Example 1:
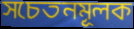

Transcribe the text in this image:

সচেতনমূলক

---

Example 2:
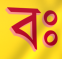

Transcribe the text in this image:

বঃ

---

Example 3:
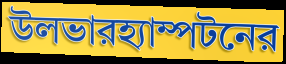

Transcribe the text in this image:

উলভারহ্যাম্পটনের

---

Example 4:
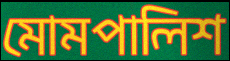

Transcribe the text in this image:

মোমপালিশ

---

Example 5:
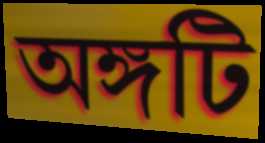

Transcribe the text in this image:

অঙ্গটি